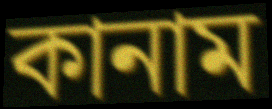
কানাম